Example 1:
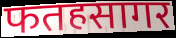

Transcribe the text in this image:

फतहसागर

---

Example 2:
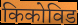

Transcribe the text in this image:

किकोविड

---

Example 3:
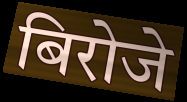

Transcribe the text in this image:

बिरोजे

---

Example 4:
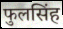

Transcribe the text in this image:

फुलसिंह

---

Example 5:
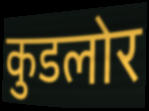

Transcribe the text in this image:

कुडलोर